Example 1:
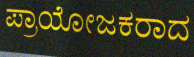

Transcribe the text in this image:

ಪ್ರಾಯೋಜಕರಾದ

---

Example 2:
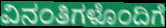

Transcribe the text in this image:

ವಿನಂತಿಗಳೊಂದಿಗೆ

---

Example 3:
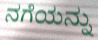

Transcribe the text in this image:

ನಗೆಯನ್ನು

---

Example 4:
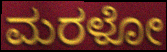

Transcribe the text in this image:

ಮರಳೋ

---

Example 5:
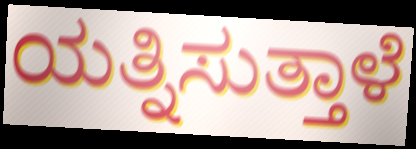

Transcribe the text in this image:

ಯತ್ನಿಸುತ್ತಾಳೆ